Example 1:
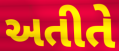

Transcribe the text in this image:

અતીતે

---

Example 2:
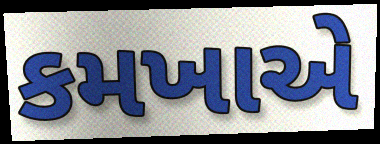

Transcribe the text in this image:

કમખાએ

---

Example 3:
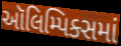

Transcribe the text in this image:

ઑલિમ્પિક્સમાં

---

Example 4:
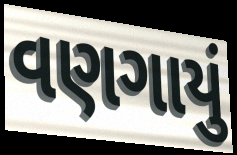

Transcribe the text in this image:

વણગાયું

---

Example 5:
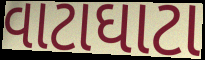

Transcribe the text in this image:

વાટાઘાટા